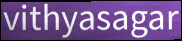
vithyasagar